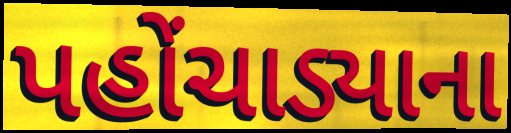
પહોંચાડ્યાના